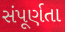
સંપૂર્ણતા